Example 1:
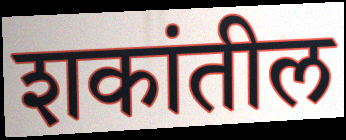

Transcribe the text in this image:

शकांतील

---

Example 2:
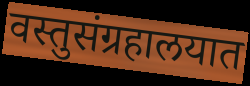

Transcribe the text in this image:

वस्तुसंग्रहालयात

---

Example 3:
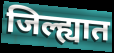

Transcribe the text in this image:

जिल्ह्यात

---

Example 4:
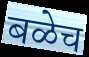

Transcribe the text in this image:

बळेच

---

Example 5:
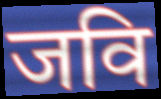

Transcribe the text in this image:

जवि